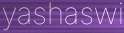
yashaswi